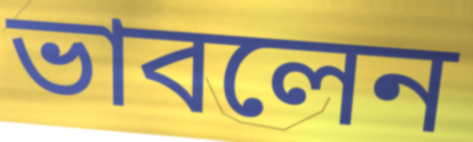
ভাবলেন